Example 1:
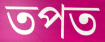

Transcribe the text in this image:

তপত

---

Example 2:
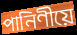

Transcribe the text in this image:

পানিণীয়ে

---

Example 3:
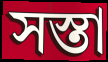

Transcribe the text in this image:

সস্তা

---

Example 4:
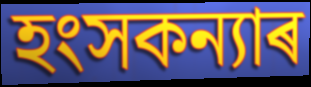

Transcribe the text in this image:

হংসকন্যাৰ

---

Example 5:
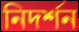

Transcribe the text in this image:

নিদৰ্শন